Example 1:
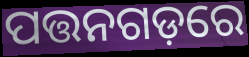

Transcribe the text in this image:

ପତ୍ତନଗଡ଼ରେ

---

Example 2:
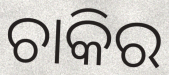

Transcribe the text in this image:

ଚାକିର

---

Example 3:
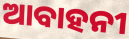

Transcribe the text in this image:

ଆବାହନୀ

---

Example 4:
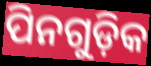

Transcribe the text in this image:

ପିନଗୁଡ଼ିକ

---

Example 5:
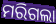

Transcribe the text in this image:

ମରିଗଲା